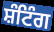
ਸ਼ੰਟਿੰਗ